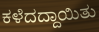
ಕಳೆದದ್ದಾಯಿತು